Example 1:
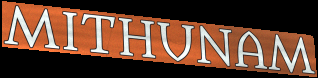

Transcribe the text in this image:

MITHUNAM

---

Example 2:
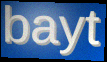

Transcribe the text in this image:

bayt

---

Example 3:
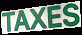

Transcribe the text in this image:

TAXES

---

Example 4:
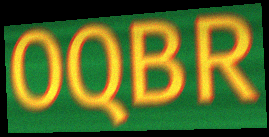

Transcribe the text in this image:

OQBR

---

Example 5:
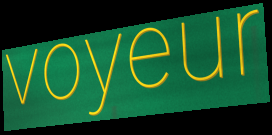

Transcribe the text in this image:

voyeur